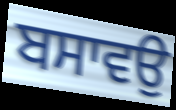
ਬਸਾਵਉ